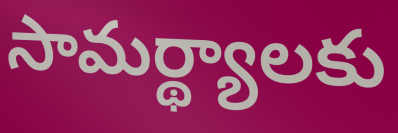
సామర్థ్యాలకు